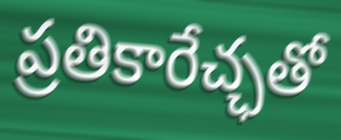
ప్రతికారేచ్ఛతో